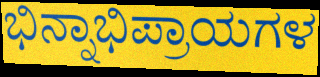
ಭಿನ್ನಾಭಿಪ್ರಾಯಗಳ